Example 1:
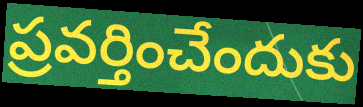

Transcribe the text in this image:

ప్రవర్తించేందుకు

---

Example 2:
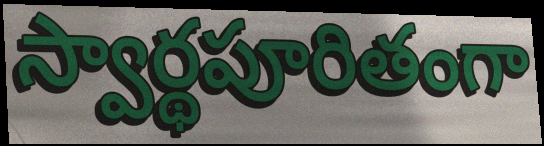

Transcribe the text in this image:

స్వార్థపూరితంగా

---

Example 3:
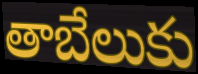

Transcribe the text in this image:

తాబేలుకు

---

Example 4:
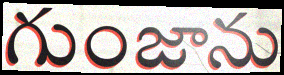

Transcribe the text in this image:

గుంజాను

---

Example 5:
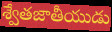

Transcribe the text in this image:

శ్వేతజాతీయుడు